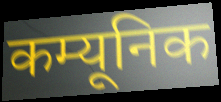
कम्यूनिक